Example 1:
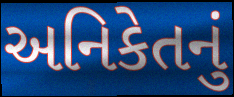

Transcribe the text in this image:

અનિકેતનું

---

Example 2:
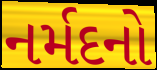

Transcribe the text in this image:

નર્મદનો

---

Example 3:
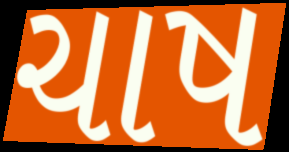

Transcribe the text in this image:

ચાષ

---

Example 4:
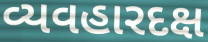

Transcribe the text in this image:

વ્યવહારદક્ષ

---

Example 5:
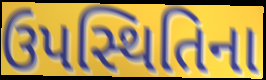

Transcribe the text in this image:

ઉપસ્થિતિના